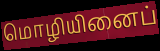
மொழியினைப்